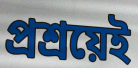
প্রশ্রয়েই